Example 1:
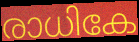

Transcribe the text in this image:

രാധികേ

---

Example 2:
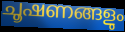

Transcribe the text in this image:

ചൂഷണങ്ങളും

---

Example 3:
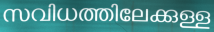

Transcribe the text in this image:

സവിധത്തിലേക്കുള്ള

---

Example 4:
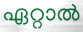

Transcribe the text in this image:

ഏറ്റാൽ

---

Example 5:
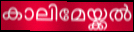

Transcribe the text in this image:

കാലിമേയ്ക്കൽ